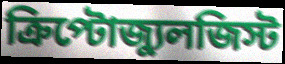
ক্রিপ্টোজ্যুলজিস্ট